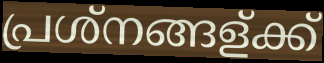
പ്രശ്നങ്ങള്ക്ക്